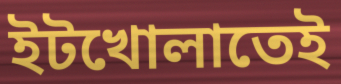
ইটখোলাতেই